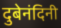
दुबेनंदिनी